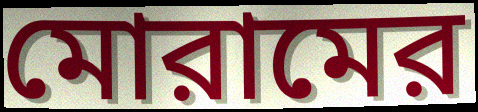
মোরামের